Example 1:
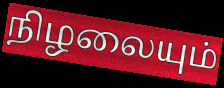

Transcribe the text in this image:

நிழலையும்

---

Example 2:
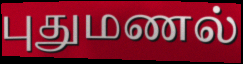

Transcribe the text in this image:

புதுமணல்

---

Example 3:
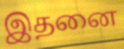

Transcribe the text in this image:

இதனை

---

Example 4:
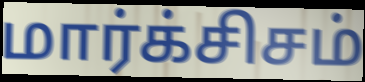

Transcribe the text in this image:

மார்க்சிசம்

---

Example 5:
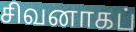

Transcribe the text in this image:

சிவனாகப்